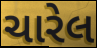
ચારેલ